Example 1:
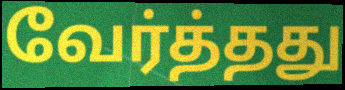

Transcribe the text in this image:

வேர்த்தது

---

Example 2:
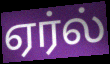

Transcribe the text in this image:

ஏர்ல்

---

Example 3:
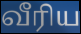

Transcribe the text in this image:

வீரிய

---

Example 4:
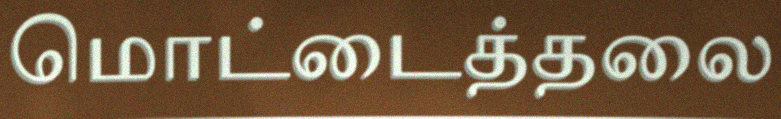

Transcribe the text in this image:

மொட்டைத்தலை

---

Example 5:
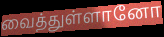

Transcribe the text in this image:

வைத்துள்ளானோ